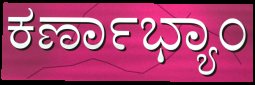
ಕರ್ಣಾಭ್ಯಾಂ